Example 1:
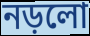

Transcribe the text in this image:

নড়লো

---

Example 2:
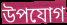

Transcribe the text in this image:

উপযোগ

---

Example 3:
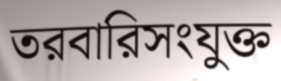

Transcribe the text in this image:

তরবারিসংযুক্ত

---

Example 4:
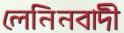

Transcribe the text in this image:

লেনিনবাদী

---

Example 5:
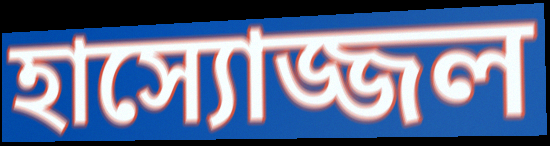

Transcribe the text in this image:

হাস্যোজ্জল